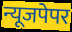
न्यूजपेपर